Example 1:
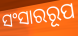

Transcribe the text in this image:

ସଂସାରରୂପ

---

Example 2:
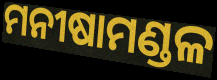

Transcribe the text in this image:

ମନୀଷାମଣ୍ଡଳ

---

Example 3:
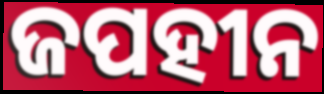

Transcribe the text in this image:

ଜପହୀନ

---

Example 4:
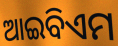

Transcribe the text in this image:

ଆଇବିଏମ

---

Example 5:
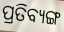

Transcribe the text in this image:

ପ୍ରତିବ୍ୟଙ୍ଗ